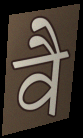
वै